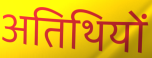
अतिथियों